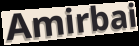
Amirbai